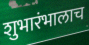
शुभारंभालाच